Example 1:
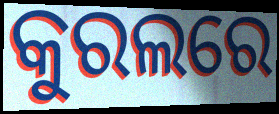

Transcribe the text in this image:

କୁରଲରେ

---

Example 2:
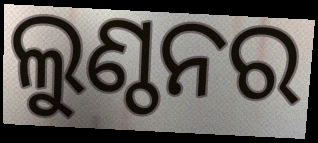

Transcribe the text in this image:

ଲୁଣ୍ଠନର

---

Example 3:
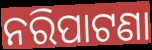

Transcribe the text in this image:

ନରିପାଟଣା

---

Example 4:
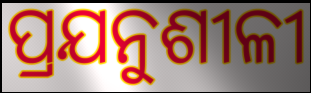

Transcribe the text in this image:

ପ୍ରଯନୁଶୀଳୀ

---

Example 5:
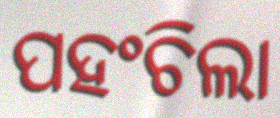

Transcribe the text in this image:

ପହଂଚିଲା